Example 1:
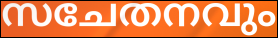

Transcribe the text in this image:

സചേതനവും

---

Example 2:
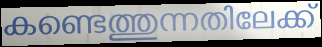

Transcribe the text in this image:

കണ്ടെത്തുന്നതിലേക്ക്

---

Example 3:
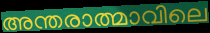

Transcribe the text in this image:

അന്തരാത്മാവിലെ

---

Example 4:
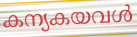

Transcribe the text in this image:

കന്യകയവൾ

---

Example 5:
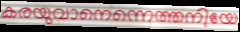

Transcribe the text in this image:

കരയുവാനെന്നെത്തനിയേ